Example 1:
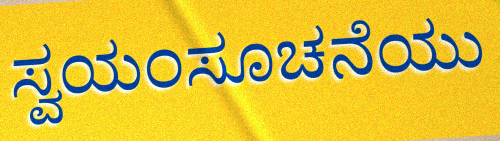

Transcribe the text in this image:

ಸ್ವಯಂಸೂಚನೆಯು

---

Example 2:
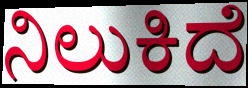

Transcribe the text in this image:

ನಿಲುಕಿದೆ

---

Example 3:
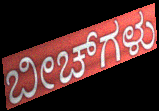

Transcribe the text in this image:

ಬೀಚ್‌ಗಳು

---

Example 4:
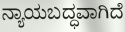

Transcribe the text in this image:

ನ್ಯಾಯಬದ್ಧವಾಗಿದೆ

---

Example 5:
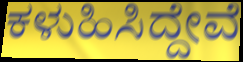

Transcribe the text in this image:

ಕಳುಹಿಸಿದ್ದೇವೆ